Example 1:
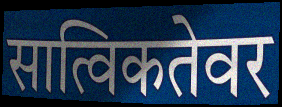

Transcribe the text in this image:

सात्विकतेवर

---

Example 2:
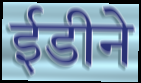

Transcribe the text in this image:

ईडीने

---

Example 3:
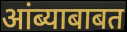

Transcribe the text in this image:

आंब्याबाबत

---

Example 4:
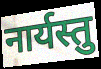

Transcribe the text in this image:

नार्यस्तु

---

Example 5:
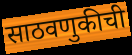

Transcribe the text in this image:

साठवणुकीची